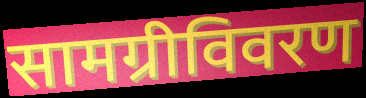
सामग्रीविवरण